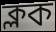
ক্লক